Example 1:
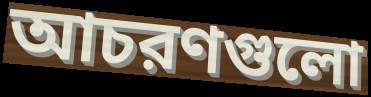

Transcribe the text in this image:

আচরণগুলো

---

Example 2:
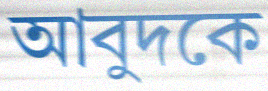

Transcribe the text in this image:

আবুদকে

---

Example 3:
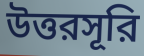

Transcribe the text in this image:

উত্তরসূরি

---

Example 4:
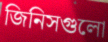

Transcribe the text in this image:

জিনিসগুলো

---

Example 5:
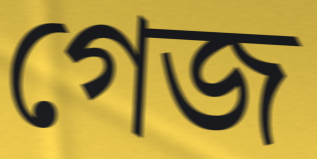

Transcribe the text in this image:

গেজ